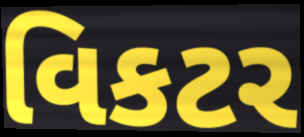
વિકટર